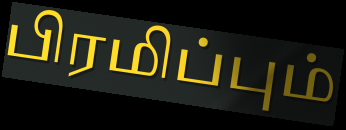
பிரமிப்பும்